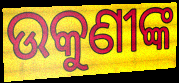
ଉକୁଣୀଙ୍କ